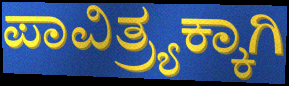
ಪಾವಿತ್ರ್ಯಕ್ಕಾಗಿ